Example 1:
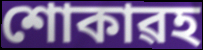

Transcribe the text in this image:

শোকাৱহ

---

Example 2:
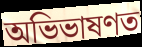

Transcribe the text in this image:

অভিভাষণত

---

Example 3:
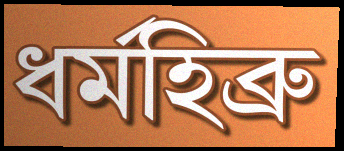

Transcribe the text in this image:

ধৰ্মহিব্ৰু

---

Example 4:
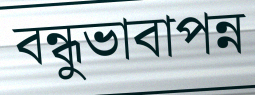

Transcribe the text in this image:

বন্ধুভাবাপন্ন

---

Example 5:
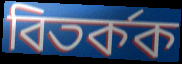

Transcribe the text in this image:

বিতৰ্কক